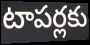
టాపర్లకు